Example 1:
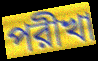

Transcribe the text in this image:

পরীখা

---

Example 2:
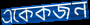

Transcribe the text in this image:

একেকজন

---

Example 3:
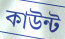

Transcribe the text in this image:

কাউন্ট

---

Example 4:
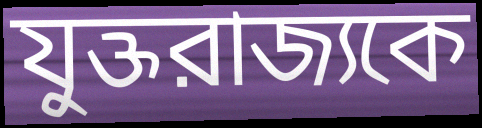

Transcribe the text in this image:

যুক্তরাজ্যকে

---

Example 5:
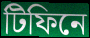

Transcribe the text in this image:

টিফিনে